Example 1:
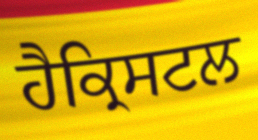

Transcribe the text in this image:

ਹੈਕ੍ਰਿਸਟਲ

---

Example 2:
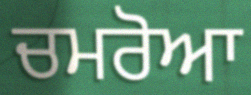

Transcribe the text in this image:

ਚਮਰੋਆ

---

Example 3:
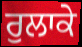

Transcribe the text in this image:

ਰੁਲਾਕੇ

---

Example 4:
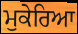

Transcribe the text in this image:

ਮੁਕੇਰਿਆ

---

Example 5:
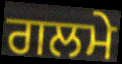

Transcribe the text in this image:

ਗਲਮੇ